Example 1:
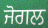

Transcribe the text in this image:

ਜੋਗਲ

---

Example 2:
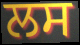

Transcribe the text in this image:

ਲਸ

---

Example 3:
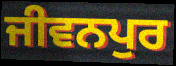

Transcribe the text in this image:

ਜੀਵਨਪੁਰ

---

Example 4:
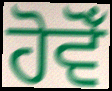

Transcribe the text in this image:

ਹੋਵੋਁ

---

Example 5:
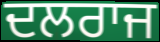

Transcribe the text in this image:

ਦਲਰਾਜ